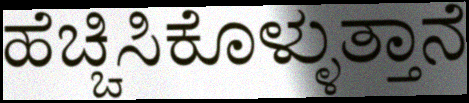
ಹೆಚ್ಚಿಸಿಕೊಳ್ಳುತ್ತಾನೆ